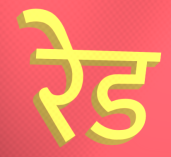
रेड